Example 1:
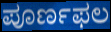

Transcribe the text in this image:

ಪೂರ್ಣಫಲ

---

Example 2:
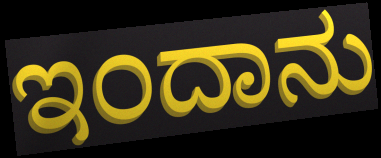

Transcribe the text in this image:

ಇಂದಾನು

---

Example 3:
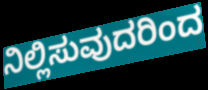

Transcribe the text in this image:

ನಿಲ್ಲಿಸುವುದರಿಂದ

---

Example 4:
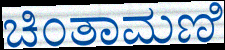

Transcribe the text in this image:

ಚಿಂತಾಮಣಿ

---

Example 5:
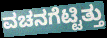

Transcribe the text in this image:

ವಚನಗೆಟ್ಟಿತ್ತು